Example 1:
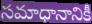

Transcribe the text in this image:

సమాధానానికీ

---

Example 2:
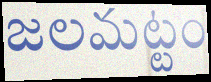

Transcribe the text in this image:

జలమట్టం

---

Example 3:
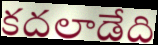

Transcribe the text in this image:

కదలాడేది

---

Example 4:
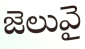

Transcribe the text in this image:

జెలువై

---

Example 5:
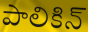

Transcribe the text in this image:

పాలికిన్